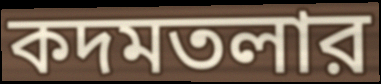
কদমতলার